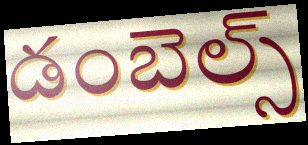
డంబెల్స్